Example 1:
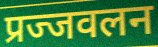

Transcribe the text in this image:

प्रज्जवलन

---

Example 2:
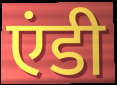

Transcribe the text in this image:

एंडी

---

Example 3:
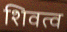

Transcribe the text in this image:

शिवत्व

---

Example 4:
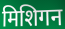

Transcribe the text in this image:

मिशिगन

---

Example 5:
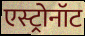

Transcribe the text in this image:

एस्‍ट्रोनॉट